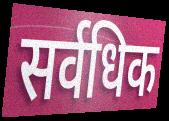
सर्वधिक